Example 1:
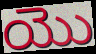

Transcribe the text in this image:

యొ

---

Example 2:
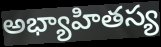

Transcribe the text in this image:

అభ్యాహితస్య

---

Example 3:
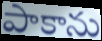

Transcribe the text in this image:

పాకాను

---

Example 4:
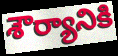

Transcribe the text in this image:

శౌర్యానికి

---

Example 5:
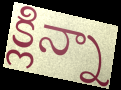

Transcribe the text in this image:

క్లిన్నా